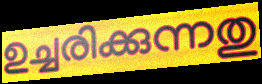
ഉച്ചരിക്കുന്നതു